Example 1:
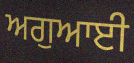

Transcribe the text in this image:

ਅਗੁਆਈ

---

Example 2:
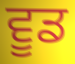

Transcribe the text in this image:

ਵੂਡ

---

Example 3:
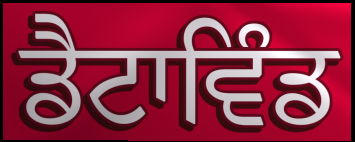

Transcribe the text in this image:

ਡੈਟਾਵਿੰਡ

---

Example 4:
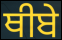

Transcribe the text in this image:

ਥੀਬੇ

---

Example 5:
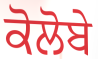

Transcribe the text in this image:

ਕੋਲੋਬੇ